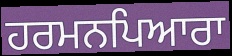
ਹਰਮਨਪਿਆਰਾ